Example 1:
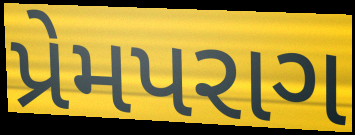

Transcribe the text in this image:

પ્રેમપરાગ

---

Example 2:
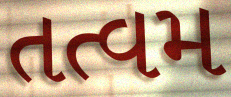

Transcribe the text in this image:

તત્વમ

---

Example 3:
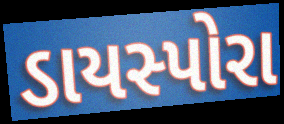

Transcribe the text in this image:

ડાયસ્પોરા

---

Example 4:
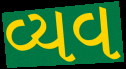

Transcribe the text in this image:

વ્યવ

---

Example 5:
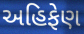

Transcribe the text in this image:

અહિફેણ